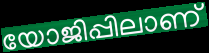
യോജിപ്പിലാണ്